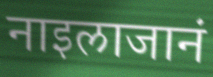
नाइलाजानं